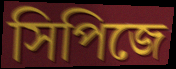
সিপিজে